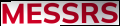
MESSRS